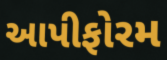
આપીફોરમ